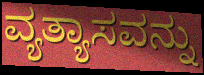
ವ್ಯತ್ಯಾಸವನ್ನು